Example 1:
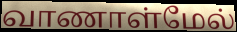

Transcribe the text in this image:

வாணாள்மேல்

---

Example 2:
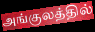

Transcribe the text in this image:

அங்குலத்தில்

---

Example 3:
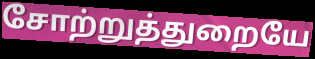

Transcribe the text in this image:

சோற்றுத்துறையே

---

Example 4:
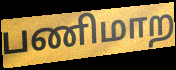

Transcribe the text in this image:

பணிமாற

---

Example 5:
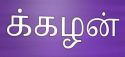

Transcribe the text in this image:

க்கழன்